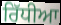
ਰਿੱਧੀਆ